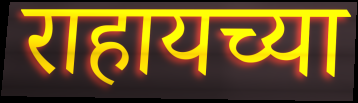
राहायच्या